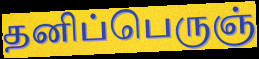
தனிப்பெருஞ்